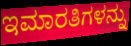
ಇಮಾರತಿಗಳನ್ನು